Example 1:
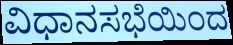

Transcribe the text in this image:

ವಿಧಾನಸಭೆಯಿಂದ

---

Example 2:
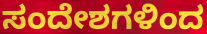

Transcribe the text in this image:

ಸಂದೇಶಗಳಿಂದ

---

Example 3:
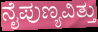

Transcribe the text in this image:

ನೈಪುಣ್ಯವಿತ್ತು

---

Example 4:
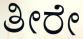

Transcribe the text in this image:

ತೀರೇ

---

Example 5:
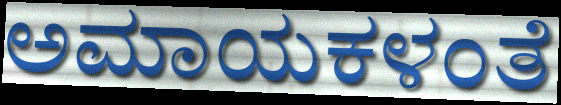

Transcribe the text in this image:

ಅಮಾಯಕಳಂತೆ